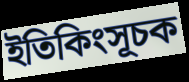
ইতিকিংসূচক